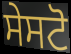
ਸੇਸਟੋ